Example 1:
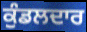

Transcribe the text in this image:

ਕੁੰਡਲਦਾਰ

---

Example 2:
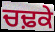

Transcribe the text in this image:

ਚਢ਼ਕੇ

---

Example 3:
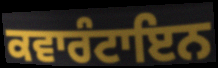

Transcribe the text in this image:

ਕਵਾਰੰਟਾਇਨ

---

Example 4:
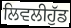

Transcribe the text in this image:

ਲਿਵਲੀਹੁੱਡ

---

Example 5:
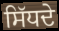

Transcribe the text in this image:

ਸਿੱਧਦੇ